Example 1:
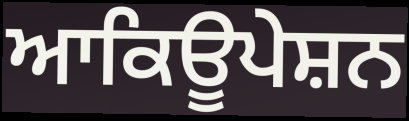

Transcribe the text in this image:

ਆਕਿਊਪੇਸ਼ਨ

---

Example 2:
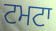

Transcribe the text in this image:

ਟਮਟਾ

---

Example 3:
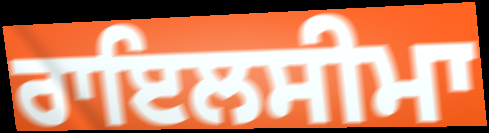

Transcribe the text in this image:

ਰਾਇਲਸੀਮਾ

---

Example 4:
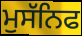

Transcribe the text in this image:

ਮੁਸੱਨਿਫ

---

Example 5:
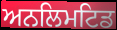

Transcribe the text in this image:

ਅਨਲਿਮਟਿਡ